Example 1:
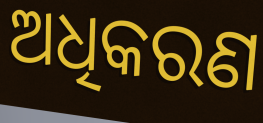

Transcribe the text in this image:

ଅଧିକରଣ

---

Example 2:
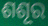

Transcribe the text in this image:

ଶଶୂର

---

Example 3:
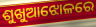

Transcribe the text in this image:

ଶୁଖୁଆଝୋଳରେ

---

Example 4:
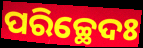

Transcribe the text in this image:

ପରିଚ୍ଛେଦଃ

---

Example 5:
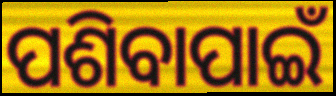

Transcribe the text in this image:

ପଶିବାପାଇଁ